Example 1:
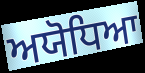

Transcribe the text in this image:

ਅਯੋਧਿਆ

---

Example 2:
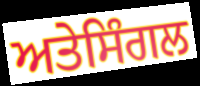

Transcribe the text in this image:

ਅਤੇਸਿੰਗਲ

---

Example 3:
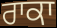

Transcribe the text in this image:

ਰਾਕਾ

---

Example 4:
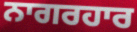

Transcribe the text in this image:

ਨਾਗਰਹਾਰ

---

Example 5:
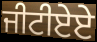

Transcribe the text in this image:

ਜੀਟੀਏਏ